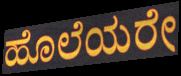
ಹೊಲೆಯರೇ